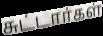
சுட்டார்கள்